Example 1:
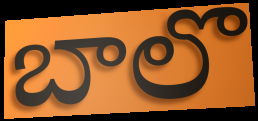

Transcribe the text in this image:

బాలొ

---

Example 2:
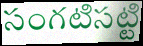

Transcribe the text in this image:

సంగటిసట్టి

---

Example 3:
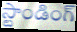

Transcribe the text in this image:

స్టాండింగ్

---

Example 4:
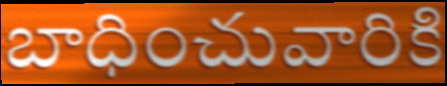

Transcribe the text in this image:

బాధించువారికి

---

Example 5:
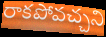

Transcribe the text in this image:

రాకపోవచ్చని